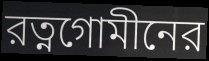
রত্নগোমীনের